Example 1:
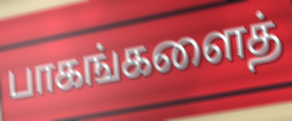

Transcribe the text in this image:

பாகங்களைத்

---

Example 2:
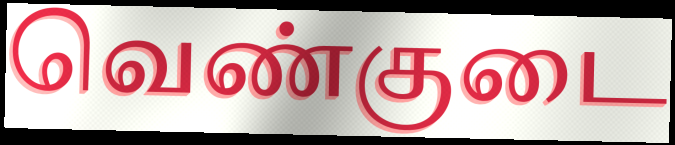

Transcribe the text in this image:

வெண்குடை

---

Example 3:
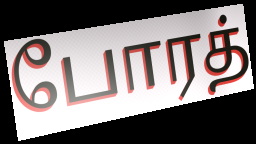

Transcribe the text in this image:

போரத்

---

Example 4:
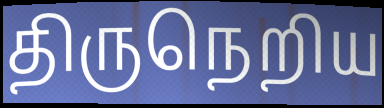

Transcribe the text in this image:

திருநெறிய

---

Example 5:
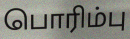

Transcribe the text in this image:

பொரிம்பு